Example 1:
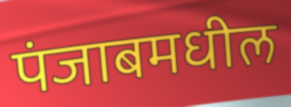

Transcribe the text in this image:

पंजाबमधील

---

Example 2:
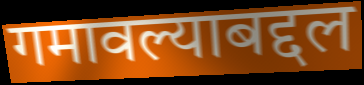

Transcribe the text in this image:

गमावल्याबद्दल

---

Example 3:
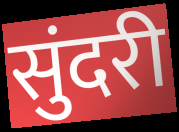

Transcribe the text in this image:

सुंदरी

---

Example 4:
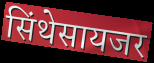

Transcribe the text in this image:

सिंथेसायजर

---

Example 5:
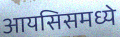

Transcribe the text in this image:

आयसिसमध्ये